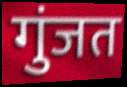
गुंजत